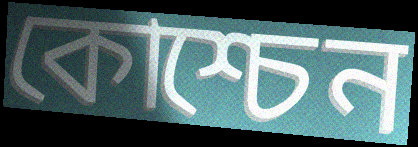
কোশ্চেন